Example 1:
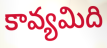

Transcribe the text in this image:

కావ్యమిది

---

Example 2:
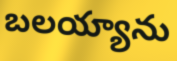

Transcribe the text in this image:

బలయ్యాను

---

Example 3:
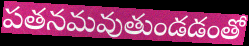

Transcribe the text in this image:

పతనమవుతుండడంతో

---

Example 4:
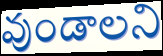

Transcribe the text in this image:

వుండాలని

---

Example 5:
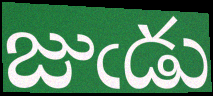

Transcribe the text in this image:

జుఁడు